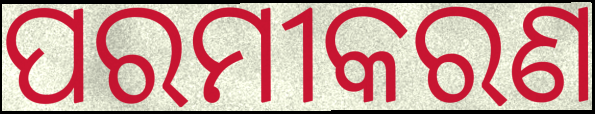
ପରମୀକରଣ